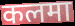
कलमा